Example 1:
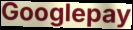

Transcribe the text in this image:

Googlepay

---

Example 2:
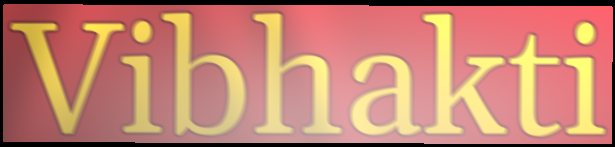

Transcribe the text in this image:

Vibhakti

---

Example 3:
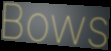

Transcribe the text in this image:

Bows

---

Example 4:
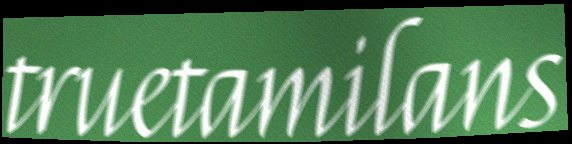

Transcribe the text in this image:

truetamilans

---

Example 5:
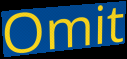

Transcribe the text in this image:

Omit